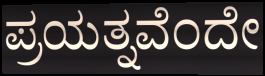
ಪ್ರಯತ್ನವೆಂದೇ